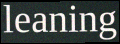
leaning